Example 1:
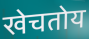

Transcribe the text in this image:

खेचतोय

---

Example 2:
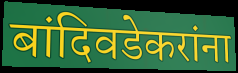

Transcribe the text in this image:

बांदिवडेकरांना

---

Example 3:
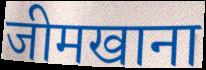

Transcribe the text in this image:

जीमखाना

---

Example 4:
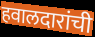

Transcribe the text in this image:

हवालदारांची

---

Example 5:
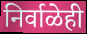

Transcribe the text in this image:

निर्वाळेही